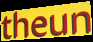
theun